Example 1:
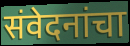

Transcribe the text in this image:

संवेदनांचा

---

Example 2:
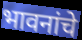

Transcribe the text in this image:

भावनांचे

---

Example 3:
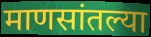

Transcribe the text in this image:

माणसांतल्या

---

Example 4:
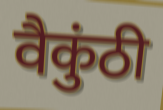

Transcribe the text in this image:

वैकुंठी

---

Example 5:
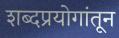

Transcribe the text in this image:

शब्दप्रयोगांतून